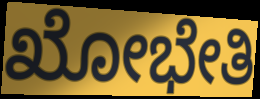
ಖೋಭೇತಿ